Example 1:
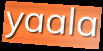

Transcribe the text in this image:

yaala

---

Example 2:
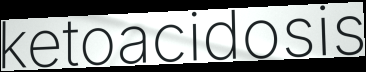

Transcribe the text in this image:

ketoacidosis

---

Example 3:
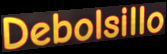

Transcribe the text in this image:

Debolsillo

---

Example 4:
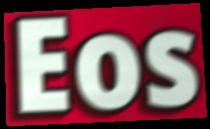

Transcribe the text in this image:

Eos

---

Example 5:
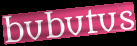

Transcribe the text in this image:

bubutus